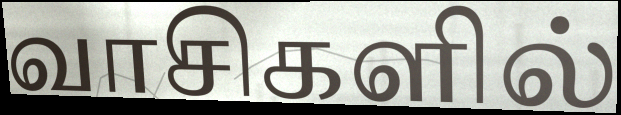
வாசிகளில்